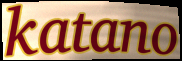
katano